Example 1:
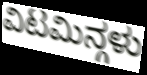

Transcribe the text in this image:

ವಿಟಮಿನ್ಗಳು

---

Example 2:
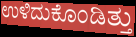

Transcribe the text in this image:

ಉಳಿದುಕೊಂಡಿತ್ತು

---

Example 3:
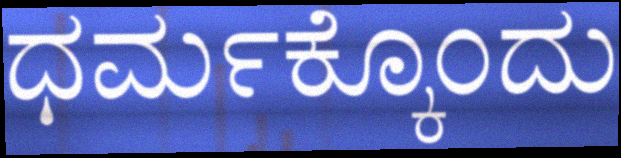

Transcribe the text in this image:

ಧರ್ಮಕ್ಕೊಂದು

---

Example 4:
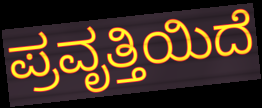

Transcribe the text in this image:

ಪ್ರವೃತ್ತಿಯಿದೆ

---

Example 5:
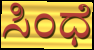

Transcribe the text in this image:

ಸಿಂಧೆ